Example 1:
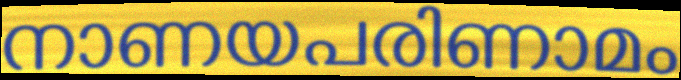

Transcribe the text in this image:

നാണയപരിണാമം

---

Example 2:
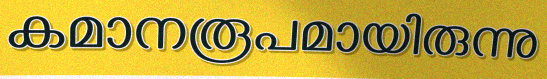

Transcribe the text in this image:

കമാനരൂപമായിരുന്നു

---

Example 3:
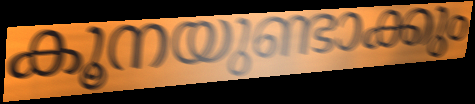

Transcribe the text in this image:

കൂനയുണ്ടാക്കും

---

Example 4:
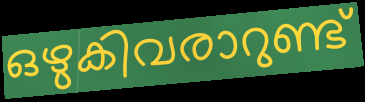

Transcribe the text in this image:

ഒഴുകിവരാറുണ്ട്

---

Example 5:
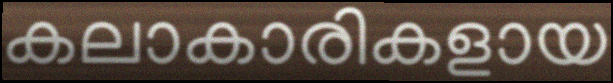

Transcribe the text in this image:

കലാകാരികളായ